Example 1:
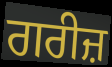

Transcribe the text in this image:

ਗਰੀਜ਼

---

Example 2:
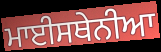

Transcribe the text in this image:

ਮਾਈਸਥੇਨੀਆ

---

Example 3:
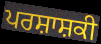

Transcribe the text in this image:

ਪਰਸ਼ਾਸ਼ਕੀ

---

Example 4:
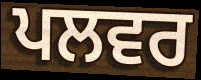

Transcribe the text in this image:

ਪਲਵਰ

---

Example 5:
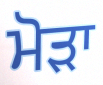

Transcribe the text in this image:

ਮੋੜਾ